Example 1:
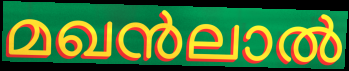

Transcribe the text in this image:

മഖൻലാൽ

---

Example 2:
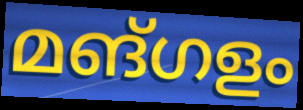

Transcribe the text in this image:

മങ്ഗളം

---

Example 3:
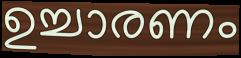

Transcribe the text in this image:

ഉച്ചാരണം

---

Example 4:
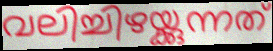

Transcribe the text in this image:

വലിച്ചിഴയ്ക്കുന്നത്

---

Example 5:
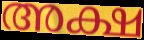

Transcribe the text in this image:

അക്ഷ